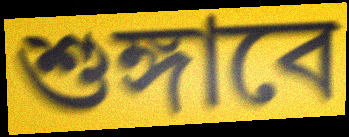
শুঙ্গাবে